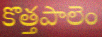
కొత్తపాలెం